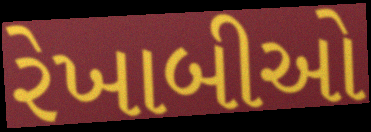
રેખાબીઓ